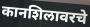
कानशिलावरचे